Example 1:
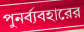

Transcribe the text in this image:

পুনর্ব্যবহারের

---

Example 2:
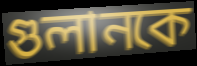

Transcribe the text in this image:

গুলানকে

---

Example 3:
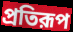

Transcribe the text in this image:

প্রতিরূপ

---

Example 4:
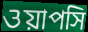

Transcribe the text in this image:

ওয়াপসি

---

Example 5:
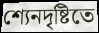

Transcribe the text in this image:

শ্যেনদৃষ্টিতে